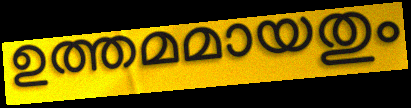
ഉത്തമമായതും